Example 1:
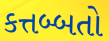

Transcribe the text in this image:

કત્તબ્બતો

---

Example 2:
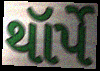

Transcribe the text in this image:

થૉર્પે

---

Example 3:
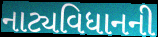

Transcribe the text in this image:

નાટ્યવિધાનની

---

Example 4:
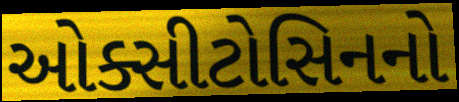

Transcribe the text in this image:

ઓક્સીટોસિનનો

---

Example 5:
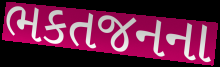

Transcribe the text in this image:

ભકતજનના